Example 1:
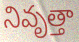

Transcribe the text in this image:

నివృత్తా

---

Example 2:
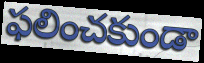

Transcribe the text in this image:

ఫలించకుండా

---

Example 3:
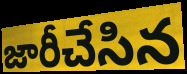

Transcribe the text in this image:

జారీచేసిన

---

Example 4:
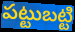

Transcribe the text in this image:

పట్టుబట్టి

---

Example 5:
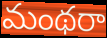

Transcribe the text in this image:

మంథరా